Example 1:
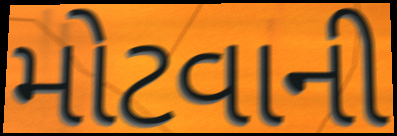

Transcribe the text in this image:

મોટવાની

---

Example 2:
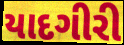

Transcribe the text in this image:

યાદગીરી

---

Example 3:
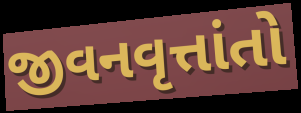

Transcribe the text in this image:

જીવનવૃત્તાંતો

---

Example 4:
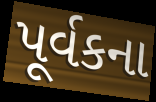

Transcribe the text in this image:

પૂર્વકના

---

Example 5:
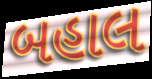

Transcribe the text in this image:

બહાલ